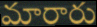
మారారు